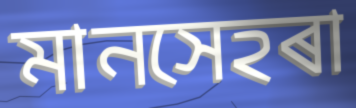
মানসেহৰা